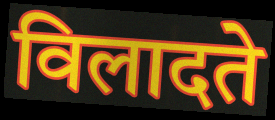
विलादते